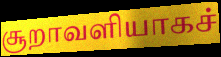
சூறாவளியாகச்